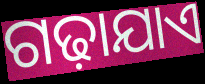
ଗଢ଼ାଯାଏ